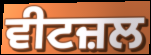
ਵੀਟਜ਼ਲ